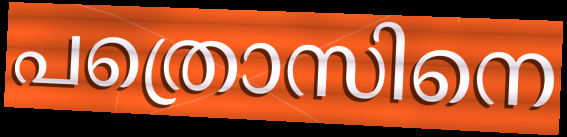
പത്രൊസിനെ